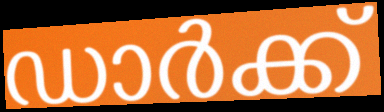
ഡാർക്ക്